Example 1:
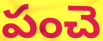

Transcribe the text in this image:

పంచె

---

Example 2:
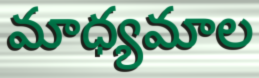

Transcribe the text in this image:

మాధ్యమాల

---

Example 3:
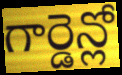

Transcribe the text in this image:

గార్డెన్లో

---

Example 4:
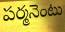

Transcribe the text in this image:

పర్మనెంటు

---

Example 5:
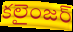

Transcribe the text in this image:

కలైంజర్